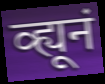
व्ह्यूनं